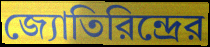
জ্যোতিরিন্দ্রের